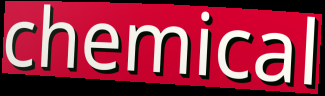
chemical